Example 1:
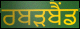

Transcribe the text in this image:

ਰਬੜਬੈਂਡ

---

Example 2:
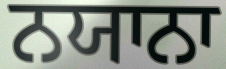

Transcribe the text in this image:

ਨਯਾਨਾ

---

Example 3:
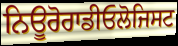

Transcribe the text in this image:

ਨਿਊਰੋਰਾਡੀਓਲੋਜਿਸਟ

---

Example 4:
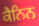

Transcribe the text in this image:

ਕੈਨਿਨ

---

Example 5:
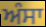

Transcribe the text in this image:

ਅੰਸਾ